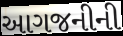
આગજનીની